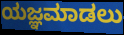
ಯಜ್ಞಮಾಡಲು